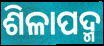
ଶିଳାପଦ୍ମ